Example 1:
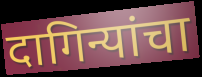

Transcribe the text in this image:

दागिन्यांचा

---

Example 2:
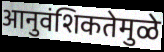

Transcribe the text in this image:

आनुवंशिकतेमुळे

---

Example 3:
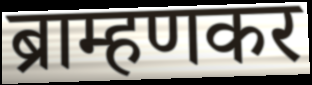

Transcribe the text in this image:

ब्राम्हणकर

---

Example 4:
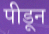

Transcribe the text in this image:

पीडून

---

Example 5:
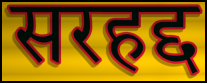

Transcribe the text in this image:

सरहद्द